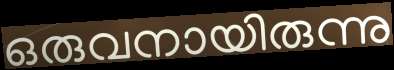
ഒരുവനായിരുന്നു